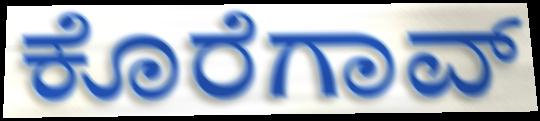
ಕೊರೆಗಾವ್